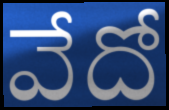
వేదో